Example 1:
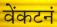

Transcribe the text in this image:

वेंकटनं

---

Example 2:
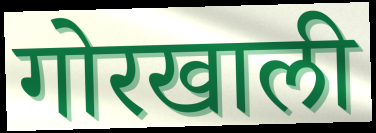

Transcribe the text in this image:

गोरखाली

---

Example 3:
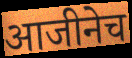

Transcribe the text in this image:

आजीनेच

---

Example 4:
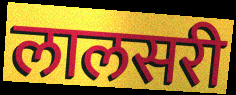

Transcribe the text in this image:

लालसरी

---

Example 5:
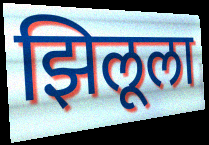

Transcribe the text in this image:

झिलूला